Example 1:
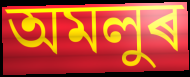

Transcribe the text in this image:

অমলুৰ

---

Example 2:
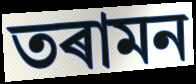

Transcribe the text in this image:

তৰামন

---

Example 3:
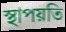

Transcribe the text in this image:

স্থাপয়তি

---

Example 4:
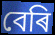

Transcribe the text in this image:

বেৰি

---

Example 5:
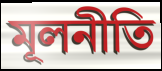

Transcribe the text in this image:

মূলনীতি